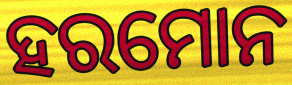
ହରମୋନ